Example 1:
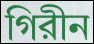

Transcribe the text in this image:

গিরীন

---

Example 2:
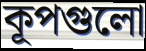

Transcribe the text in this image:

কূপগুলো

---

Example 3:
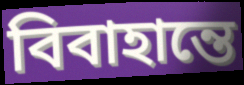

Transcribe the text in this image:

বিবাহান্তে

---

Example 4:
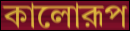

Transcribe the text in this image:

কালোরূপ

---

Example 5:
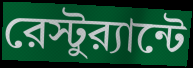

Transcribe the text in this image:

রেস্টুর‍্যান্টে